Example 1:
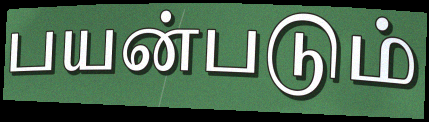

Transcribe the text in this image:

பயன்படும்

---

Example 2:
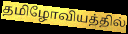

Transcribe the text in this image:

தமிழோவியத்தில்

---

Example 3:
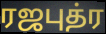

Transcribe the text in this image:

ரஜபுத்ர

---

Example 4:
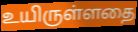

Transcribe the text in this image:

உயிருள்ளதை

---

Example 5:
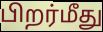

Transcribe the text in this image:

பிறர்மீது